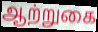
ஆற்றுகை